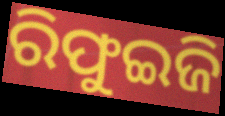
ରିଫୁଇଜି